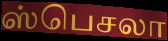
ஸ்பெசலா